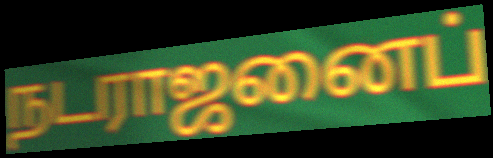
நடராஜனைப்